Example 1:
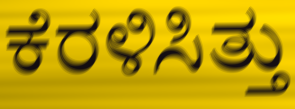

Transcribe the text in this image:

ಕೆರಳಿಸಿತ್ತು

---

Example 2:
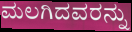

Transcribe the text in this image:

ಮಲಗಿದವರನ್ನು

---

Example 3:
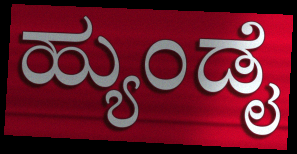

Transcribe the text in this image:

ಹ್ಯುಂಡೈ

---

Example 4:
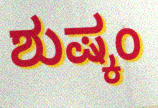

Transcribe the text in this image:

ಶುಷ್ಕಂ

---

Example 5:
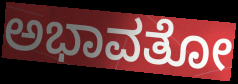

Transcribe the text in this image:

ಅಭಾವತೋ